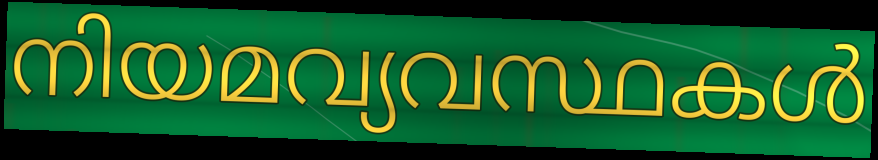
നിയമവ്യവസ്ഥകൾ